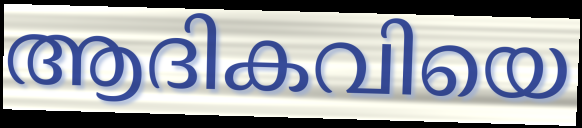
ആദികവിയെ